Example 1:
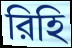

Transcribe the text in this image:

রিহি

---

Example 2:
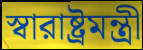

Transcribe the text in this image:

স্বারাষ্ট্রমন্ত্রী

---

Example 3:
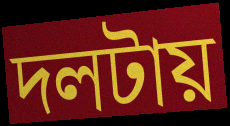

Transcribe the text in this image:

দলটায়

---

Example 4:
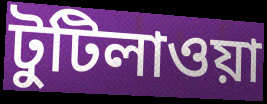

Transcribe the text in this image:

টুটিলাওয়া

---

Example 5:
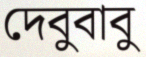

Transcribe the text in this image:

দেবুবাবু